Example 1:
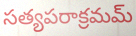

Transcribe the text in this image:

సత్యపరాక్రమమ్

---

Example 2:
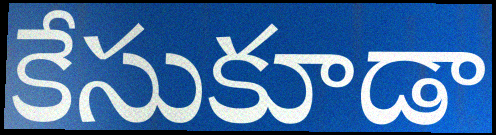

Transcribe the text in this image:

కేసుకూడా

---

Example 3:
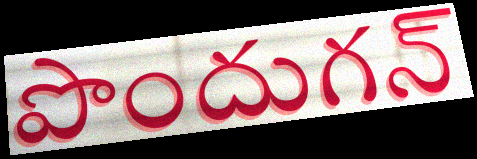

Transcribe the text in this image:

పొందుగన్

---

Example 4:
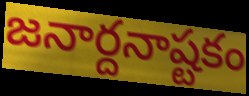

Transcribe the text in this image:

జనార్దనాష్టకం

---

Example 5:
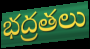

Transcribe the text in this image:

భద్రతలు